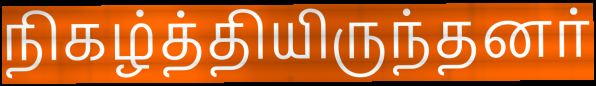
நிகழ்த்தியிருந்தனர்